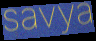
savya